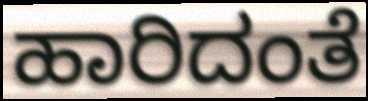
ಹಾರಿದಂತೆ